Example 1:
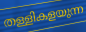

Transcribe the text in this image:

തള്ളികളയുന്ന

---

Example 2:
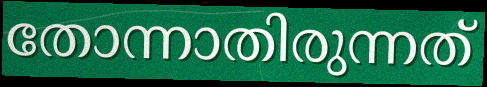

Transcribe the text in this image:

തോന്നാതിരുന്നത്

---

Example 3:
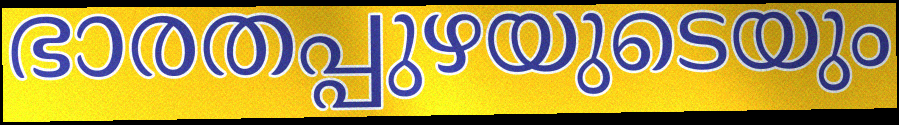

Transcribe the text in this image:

ഭാരതപ്പുഴയുടെയും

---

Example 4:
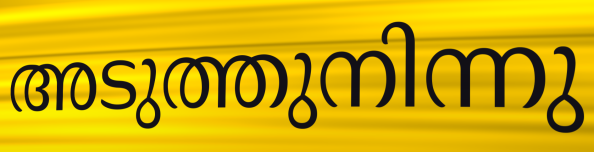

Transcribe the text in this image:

അടുത്തുനിന്നു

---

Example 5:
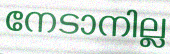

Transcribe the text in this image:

നേടാനില്ല